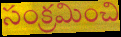
సంక్రమించి